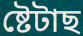
ষ্টেটাছ